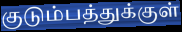
குடும்பத்துக்குள்